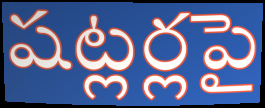
షట్లర్లపై